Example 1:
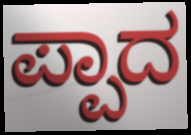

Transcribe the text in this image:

ಪ್ಪಾದ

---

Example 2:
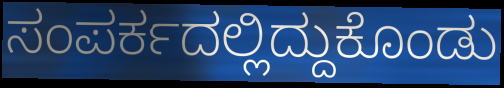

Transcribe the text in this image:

ಸಂಪರ್ಕದಲ್ಲಿದ್ದುಕೊಂಡು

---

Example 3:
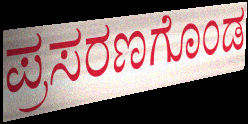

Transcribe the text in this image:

ಪ್ರಸರಣಗೊಂಡ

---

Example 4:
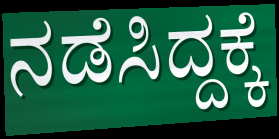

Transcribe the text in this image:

ನಡೆಸಿದ್ದಕ್ಕೆ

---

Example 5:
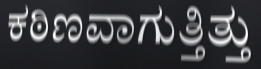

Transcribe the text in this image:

ಕಠಿಣವಾಗುತ್ತಿತ್ತು